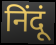
निंदूं